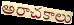
అరాచకాలు